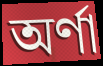
অর্ণা